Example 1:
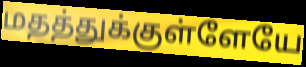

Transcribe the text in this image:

மதத்துக்குள்ளேயே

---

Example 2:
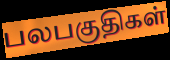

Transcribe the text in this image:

பலபகுதிகள்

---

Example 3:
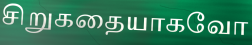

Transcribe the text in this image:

சிறுகதையாகவோ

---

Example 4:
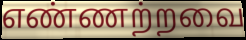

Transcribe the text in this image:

எண்ணற்றவை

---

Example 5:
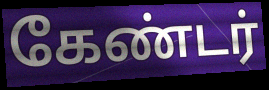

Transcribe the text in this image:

கேண்டர்